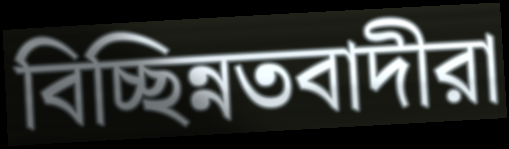
বিচ্ছিন্নতবাদীরা